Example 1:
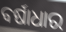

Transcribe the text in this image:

ବର୍ଷାଧାର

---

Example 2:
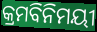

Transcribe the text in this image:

କ୍ରମବିନିମୟୀ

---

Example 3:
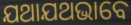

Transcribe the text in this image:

ଯଥାଯଥଭାବେ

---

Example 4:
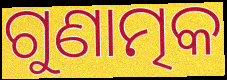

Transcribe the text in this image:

ଗୁଣାତ୍ମକ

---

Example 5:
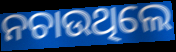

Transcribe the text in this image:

ନଚାଉଥିଲେ